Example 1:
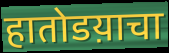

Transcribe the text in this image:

हातोडय़ाचा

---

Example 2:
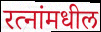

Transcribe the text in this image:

रत्नांमधील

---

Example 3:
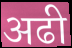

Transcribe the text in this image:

अढी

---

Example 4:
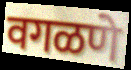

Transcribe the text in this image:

वगळणे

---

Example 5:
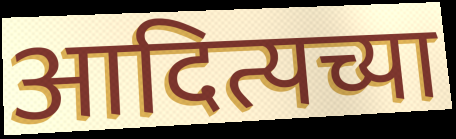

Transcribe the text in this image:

आदित्यच्या